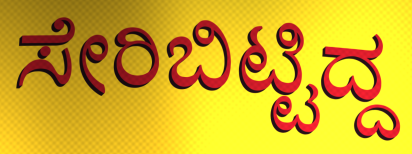
ಸೇರಿಬಿಟ್ಟಿದ್ದ